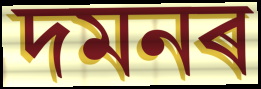
দমনৰ